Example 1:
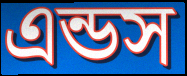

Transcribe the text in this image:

এন্ডস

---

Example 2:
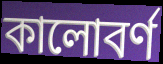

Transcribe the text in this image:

কালোবর্ণ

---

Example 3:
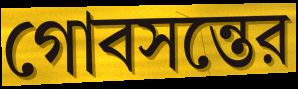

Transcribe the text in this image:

গোবসন্তের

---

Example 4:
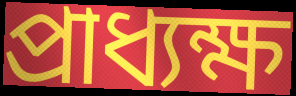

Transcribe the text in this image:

প্রাধ্যক্ষ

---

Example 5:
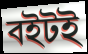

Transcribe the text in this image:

বইটই